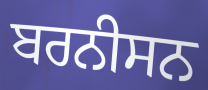
ਬਰਨੀਸਨ